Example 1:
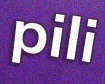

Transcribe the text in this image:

pili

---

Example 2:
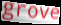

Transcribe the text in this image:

grove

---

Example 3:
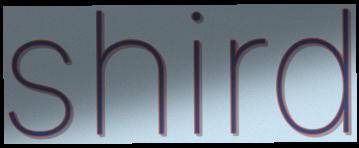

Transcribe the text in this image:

shird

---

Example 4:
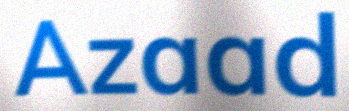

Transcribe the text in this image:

Azaad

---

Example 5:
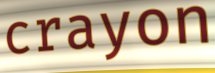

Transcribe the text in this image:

crayon